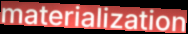
materialization